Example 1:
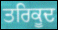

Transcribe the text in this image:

ਤਰਿਕੂਦ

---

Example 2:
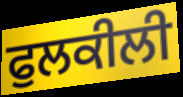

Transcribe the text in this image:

ਫੁਲਕੀਲੀ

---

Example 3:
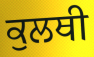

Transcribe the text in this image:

ਕੁਲਥੀ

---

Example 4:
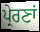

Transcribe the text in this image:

ਪ੍ਰੇਰਣਾਂ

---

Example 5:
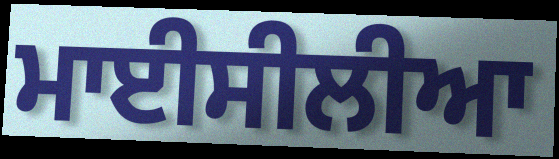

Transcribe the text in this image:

ਮਾਈਸੀਲੀਆ